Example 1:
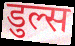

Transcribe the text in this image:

डुल्स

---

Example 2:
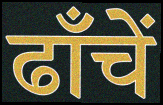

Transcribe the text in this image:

ढाँचें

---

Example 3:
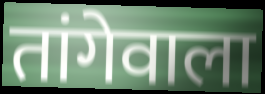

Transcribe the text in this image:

तांगेवाला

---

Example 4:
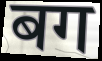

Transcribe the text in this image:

बग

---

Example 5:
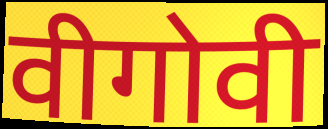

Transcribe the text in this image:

वीगोवी